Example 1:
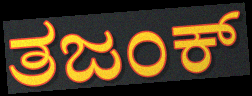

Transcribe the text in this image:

ತಜಂಕ್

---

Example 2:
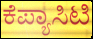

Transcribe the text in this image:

ಕೆಪ್ಯಾಸಿಟಿ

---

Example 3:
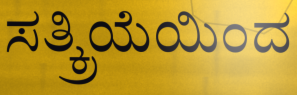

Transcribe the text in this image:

ಸತ್ಕ್ರಿಯೆಯಿಂದ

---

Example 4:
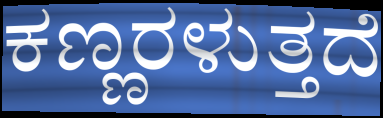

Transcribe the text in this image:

ಕಣ್ಣರಳುತ್ತದೆ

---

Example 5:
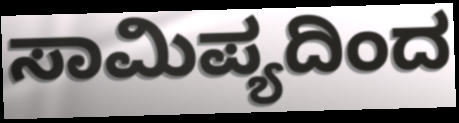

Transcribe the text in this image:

ಸಾಮಿಪ್ಯದಿಂದ